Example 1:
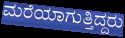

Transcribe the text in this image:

ಮರೆಯಾಗುತ್ತಿದ್ದರು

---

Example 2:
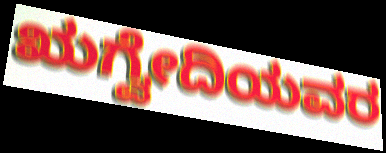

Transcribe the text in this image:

ಋಗ್ವೇದಿಯವರ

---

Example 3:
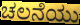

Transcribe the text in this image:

ಚಲನೆಯು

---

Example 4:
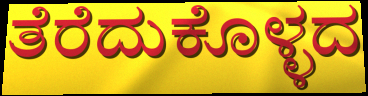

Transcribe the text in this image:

ತೆರೆದುಕೊಳ್ಳದ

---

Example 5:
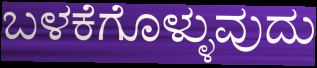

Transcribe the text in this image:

ಬಳಕೆಗೊಳ್ಳುವುದು